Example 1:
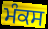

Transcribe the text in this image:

ਮੰਕਸ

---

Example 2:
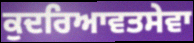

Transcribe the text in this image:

ਕੁਦਰਿਆਵਤਸੇਵਾ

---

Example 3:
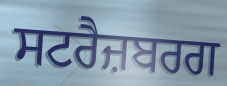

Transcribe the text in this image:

ਸਟਰੈਜ਼ਬਰਗ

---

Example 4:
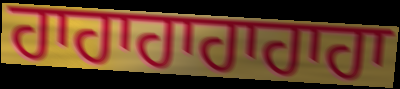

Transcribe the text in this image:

ਹਾਹਾਹਾਹਾਹਾਹਾ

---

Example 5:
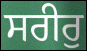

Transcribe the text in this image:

ਸਰੀਰੁ